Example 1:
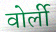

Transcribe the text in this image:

वोर्ली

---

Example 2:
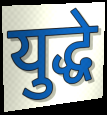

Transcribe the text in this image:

युद्धे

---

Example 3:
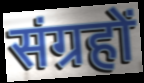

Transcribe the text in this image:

संग्रहों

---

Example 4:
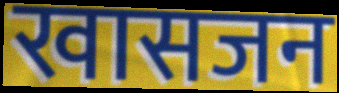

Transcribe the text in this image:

खासजन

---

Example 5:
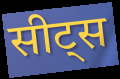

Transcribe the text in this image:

सीट्स